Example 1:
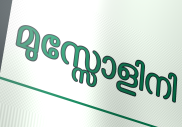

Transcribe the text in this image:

മുസ്സോളിനി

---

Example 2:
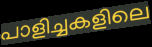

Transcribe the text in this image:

പാളിച്ചകളിലെ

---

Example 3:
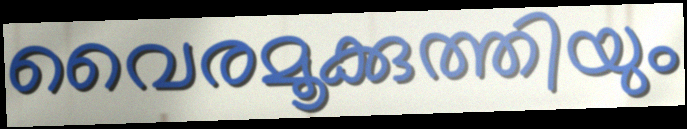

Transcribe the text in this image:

വൈരമൂക്കുത്തിയും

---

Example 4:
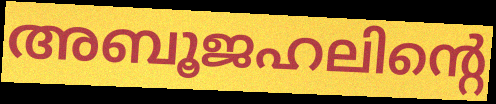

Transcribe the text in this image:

അബൂജഹലിന്റെ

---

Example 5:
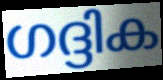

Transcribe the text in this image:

ഗദ്ദിക